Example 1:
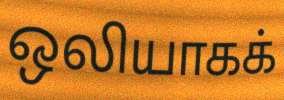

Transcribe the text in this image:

ஒலியாகக்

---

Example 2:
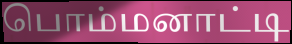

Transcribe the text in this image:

பொம்மனாட்டி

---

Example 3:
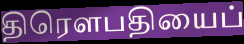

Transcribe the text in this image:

திரெளபதியைப்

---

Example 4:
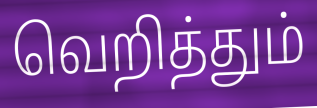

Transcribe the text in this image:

வெறித்தும்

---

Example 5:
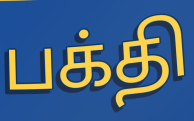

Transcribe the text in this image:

பக்தி